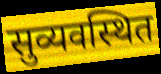
सुव्यवस्थित